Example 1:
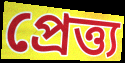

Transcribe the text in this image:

প্রেত্ত্য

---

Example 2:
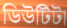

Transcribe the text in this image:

ডিউটিটা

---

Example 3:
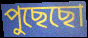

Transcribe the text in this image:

পুছেছো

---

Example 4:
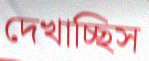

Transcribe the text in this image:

দেখাচ্ছিস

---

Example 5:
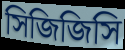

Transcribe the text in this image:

সিজিজিসি